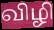
விழி